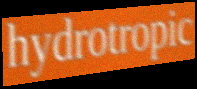
hydrotropic